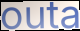
outa